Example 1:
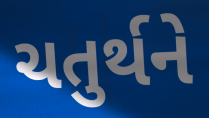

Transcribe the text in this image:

ચતુર્થને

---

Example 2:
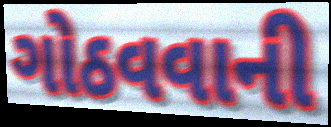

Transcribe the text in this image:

ગોઠવવાની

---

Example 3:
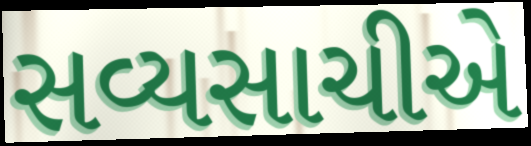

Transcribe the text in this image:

સવ્યસાચીએ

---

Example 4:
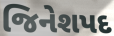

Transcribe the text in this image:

જિનેશપદ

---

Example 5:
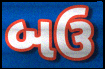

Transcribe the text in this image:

બઉ